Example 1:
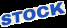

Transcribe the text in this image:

STOCK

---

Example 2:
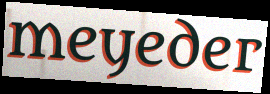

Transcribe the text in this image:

meyeder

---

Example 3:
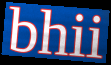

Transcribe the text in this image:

bhii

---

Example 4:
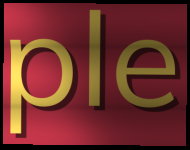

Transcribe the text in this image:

ple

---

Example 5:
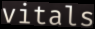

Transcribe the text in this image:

vitals